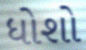
ધોશો